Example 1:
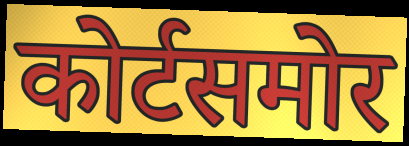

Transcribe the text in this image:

कोर्टसमोर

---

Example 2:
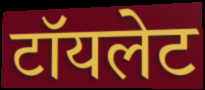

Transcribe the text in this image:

टॉयलेट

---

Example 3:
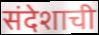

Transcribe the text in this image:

संदेशाची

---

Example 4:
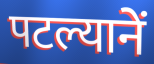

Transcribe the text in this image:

पटल्यानें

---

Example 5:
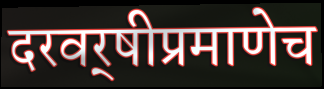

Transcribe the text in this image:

दरवर्षीप्रमाणेच